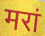
मरां